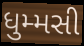
ધુમ્મસી